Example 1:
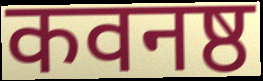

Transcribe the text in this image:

कवनष्ठ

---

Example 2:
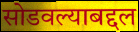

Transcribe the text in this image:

सोडवल्याबद्दल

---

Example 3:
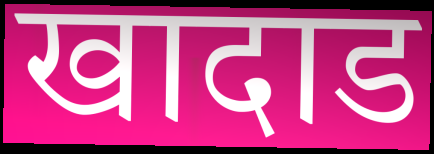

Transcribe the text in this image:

खादाड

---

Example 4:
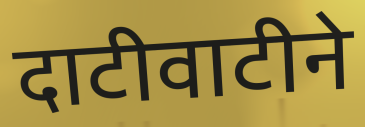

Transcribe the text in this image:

दाटीवाटीने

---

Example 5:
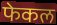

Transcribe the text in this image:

फेकल